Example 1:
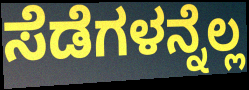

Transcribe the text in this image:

ಸೆಡೆಗಳನ್ನೆಲ್ಲ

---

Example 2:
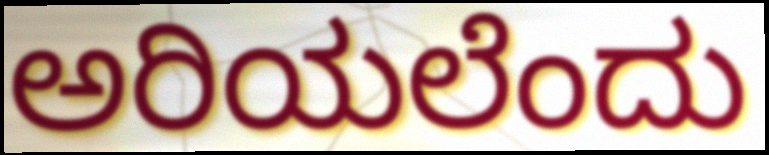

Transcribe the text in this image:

ಅರಿಯಲೆಂದು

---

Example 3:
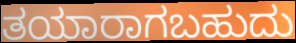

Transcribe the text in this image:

ತಯಾರಾಗಬಹುದು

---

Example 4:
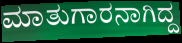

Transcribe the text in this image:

ಮಾತುಗಾರನಾಗಿದ್ದ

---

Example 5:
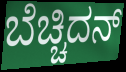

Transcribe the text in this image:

ಬೆಚ್ಚಿದನ್